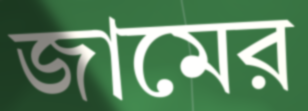
জামের